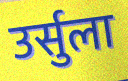
उर्सुला